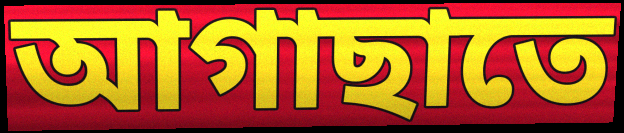
আগাছাতে